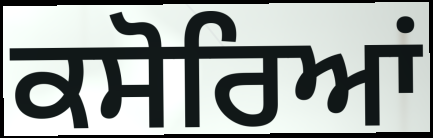
ਕਸੋਰਿਆਂ